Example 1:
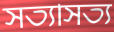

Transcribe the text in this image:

সত্যাসত্য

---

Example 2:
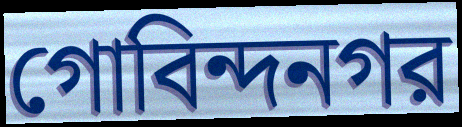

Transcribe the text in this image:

গোবিন্দনগর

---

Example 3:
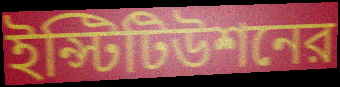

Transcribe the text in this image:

ইন্স্টিটিউশনের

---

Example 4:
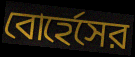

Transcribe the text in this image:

বোর্হেসের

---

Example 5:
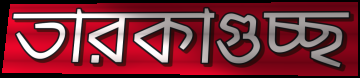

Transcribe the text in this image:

তারকাগুচ্ছ